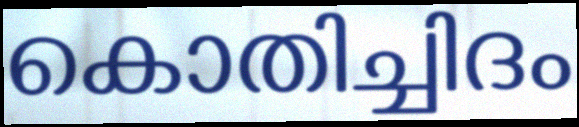
കൊതിച്ചിദം